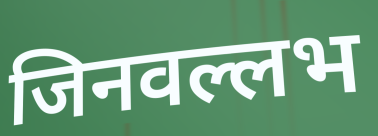
जिनवल्लभ